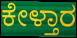
ಕೇಳ್ತಾರ